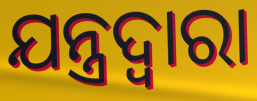
ଯନ୍ତ୍ରଦ୍ବାରା